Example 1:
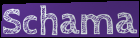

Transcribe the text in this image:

Schama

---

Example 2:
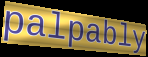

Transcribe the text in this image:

palpably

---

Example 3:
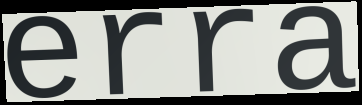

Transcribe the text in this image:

erra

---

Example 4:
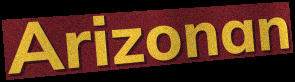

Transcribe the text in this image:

Arizonan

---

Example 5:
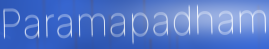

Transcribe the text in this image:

Paramapadham